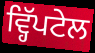
ਵ੍ਹਿੱਪਟੇਲ